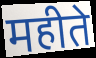
महीते